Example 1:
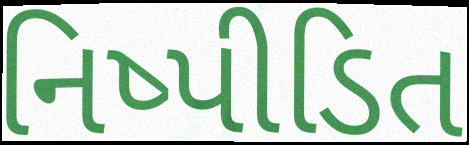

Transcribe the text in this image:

નિષ્પીડિત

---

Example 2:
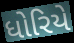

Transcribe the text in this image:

ધોરિયે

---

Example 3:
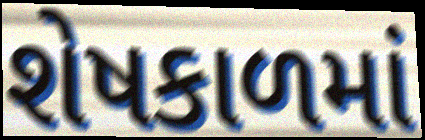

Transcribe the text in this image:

શેષકાળમાં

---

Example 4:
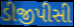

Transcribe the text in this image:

ડીજીપીસી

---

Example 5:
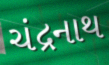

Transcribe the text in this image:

ચંદ્રનાથ